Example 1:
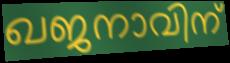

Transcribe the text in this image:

ഖജനാവിന്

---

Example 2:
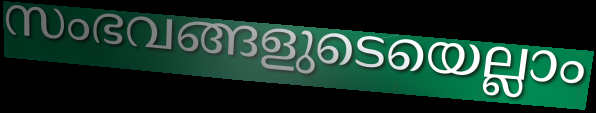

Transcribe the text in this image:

സംഭവങ്ങളുടെയെല്ലാം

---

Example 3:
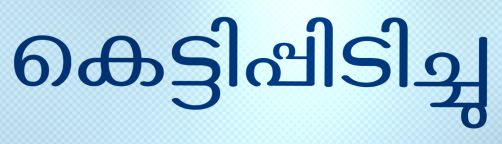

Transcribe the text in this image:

കെട്ടിപ്പിടിച്ചു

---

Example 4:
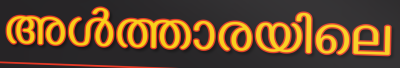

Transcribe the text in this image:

അൾത്താരയിലെ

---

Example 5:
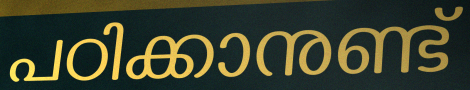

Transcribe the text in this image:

പഠിക്കാനുണ്ട്